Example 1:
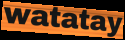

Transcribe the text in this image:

watatay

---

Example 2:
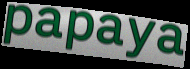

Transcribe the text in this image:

papaya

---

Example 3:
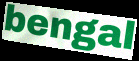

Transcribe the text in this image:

bengal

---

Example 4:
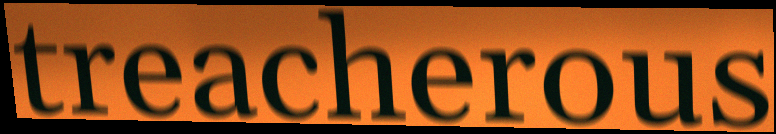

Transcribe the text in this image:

treacherous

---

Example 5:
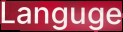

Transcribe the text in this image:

Languge